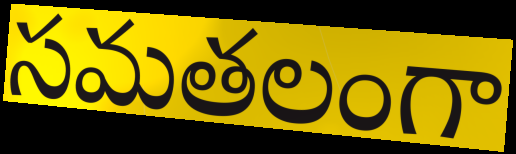
సమతలంగా